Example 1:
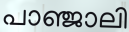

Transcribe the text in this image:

പാഞ്ജാലി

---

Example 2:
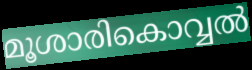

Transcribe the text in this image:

മൂശാരികൊവ്വൽ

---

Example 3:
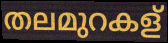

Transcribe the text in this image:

തലമുറകള്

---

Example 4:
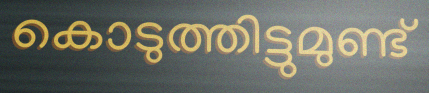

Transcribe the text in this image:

കൊടുത്തിട്ടുമുണ്ട്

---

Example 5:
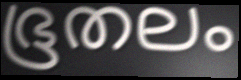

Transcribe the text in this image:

ഭൂതലം